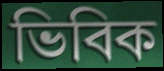
ভিবিক